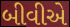
બીવીએ